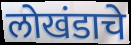
लोखंडाचे